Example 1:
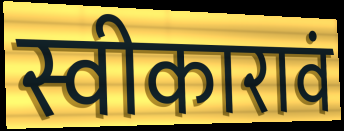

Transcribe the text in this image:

स्वीकारावं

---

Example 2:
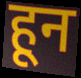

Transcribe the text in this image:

हून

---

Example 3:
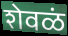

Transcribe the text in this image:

शेवळं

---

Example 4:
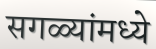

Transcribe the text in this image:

सगळ्यांमध्ये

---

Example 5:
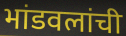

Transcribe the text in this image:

भांडवलांची